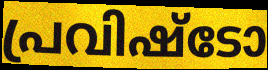
പ്രവിഷ്ടോ